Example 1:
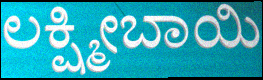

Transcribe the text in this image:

ಲಕ್ಷ್ಮೀಬಾಯಿ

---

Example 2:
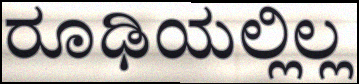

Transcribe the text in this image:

ರೂಢಿಯಲ್ಲಿಲ್ಲ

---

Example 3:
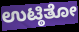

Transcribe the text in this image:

ಉಟ್ಠಿತೋ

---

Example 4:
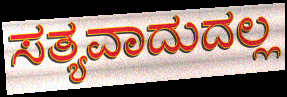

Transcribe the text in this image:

ಸತ್ಯವಾದುದಲ್ಲ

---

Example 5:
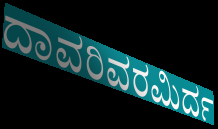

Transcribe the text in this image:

ದಾವರಿವರಮಿರ್ದ